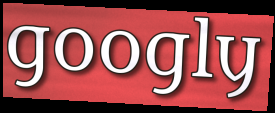
googly